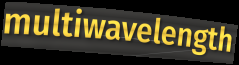
multiwavelength